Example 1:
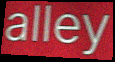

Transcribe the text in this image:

alley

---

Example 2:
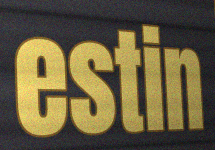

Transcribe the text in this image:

estin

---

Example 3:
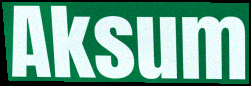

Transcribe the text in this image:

Aksum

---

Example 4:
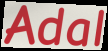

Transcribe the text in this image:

Adal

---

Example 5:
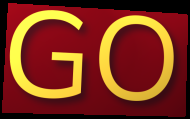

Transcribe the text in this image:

GO